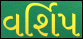
વર્શિપ